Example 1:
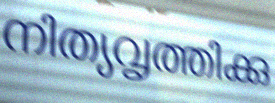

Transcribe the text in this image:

നിത്യവൃത്തിക്കു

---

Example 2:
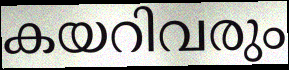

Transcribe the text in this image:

കയറിവരും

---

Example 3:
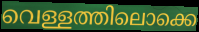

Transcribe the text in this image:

വെള്ളത്തിലൊക്കെ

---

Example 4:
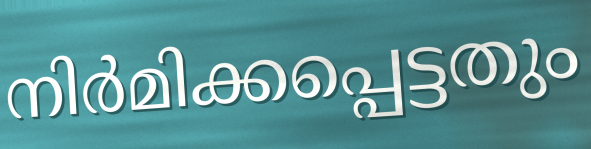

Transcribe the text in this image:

നിർമിക്കപ്പെട്ടതും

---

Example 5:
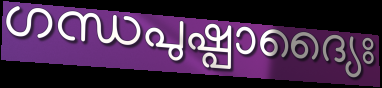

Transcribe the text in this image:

ഗന്ധപുഷ്പാദ്യൈഃ